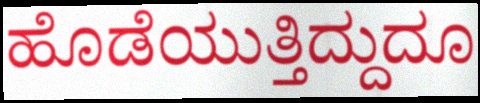
ಹೊಡೆಯುತ್ತಿದ್ದುದೂ